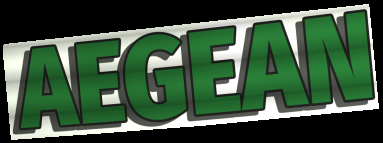
AEGEAN